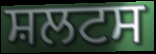
ਸ਼ਲਟਸ